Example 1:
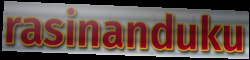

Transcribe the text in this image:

rasinanduku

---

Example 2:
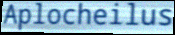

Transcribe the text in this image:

Aplocheilus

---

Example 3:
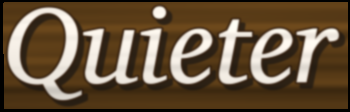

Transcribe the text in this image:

Quieter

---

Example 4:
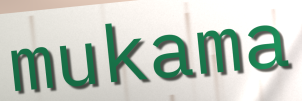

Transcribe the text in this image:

mukama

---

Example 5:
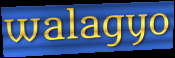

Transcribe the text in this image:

walagyo